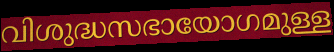
വിശുദ്ധസഭായോഗമുള്ള